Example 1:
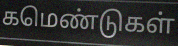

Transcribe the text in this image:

கமெண்டுகள்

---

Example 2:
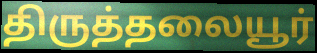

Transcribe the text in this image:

திருத்தலையூர்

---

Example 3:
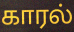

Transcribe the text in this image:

காரல்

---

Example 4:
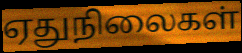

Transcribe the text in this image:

ஏதுநிலைகள்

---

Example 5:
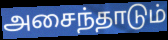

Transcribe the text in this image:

அசைந்தாடும்